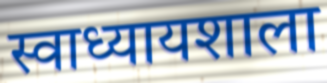
स्वाध्यायशाला